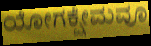
ಯೋಗಕ್ಷೇಮವೂ